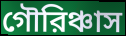
গৌরিঞ্চাস